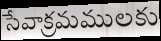
సేవాక్రమములకు